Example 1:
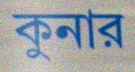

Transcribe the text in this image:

কুনার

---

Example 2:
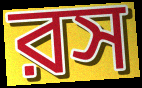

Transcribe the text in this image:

রস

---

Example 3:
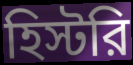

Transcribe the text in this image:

হিস্টরি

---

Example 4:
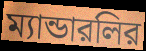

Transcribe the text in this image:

ম্যান্ডারলির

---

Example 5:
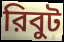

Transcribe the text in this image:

রিবুট